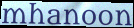
mhanoon